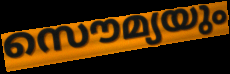
സൌമ്യയും